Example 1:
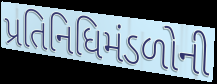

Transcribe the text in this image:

પ્રતિનિધિમંડળોની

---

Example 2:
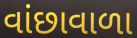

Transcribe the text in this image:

વાંછાવાળા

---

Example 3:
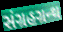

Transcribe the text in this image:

સંગ્રહગ્રન્થ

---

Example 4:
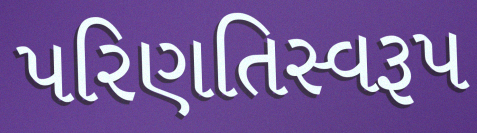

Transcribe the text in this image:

પરિણતિસ્વરૂપ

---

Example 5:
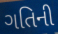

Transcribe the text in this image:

ગતિની